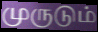
முருடும்